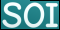
SOI